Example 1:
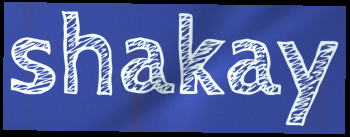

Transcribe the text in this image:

shakay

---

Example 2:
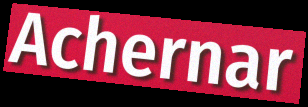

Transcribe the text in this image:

Achernar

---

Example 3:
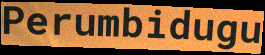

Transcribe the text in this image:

Perumbidugu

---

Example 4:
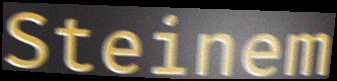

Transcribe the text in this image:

Steinem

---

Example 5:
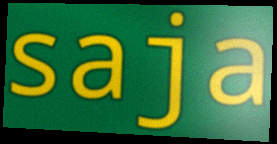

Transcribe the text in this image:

saja